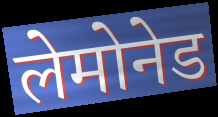
लेमोनेड